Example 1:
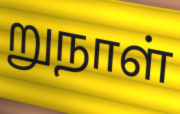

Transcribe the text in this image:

றுநாள்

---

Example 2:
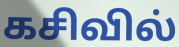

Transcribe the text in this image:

கசிவில்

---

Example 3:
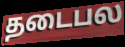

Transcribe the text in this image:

தடைபல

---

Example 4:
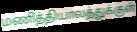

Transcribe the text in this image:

மணித்தியாலத்துக்குள்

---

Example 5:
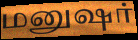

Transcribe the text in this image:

மனுஷர்